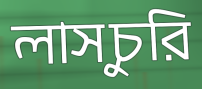
লাসচুরি